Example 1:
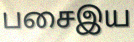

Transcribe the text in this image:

பசைஇய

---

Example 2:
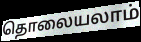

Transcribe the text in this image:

தொலையலாம்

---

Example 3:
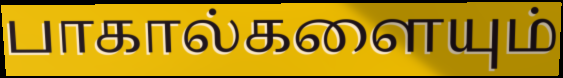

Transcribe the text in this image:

பாகால்களையும்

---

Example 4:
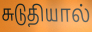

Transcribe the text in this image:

சுடுதியால்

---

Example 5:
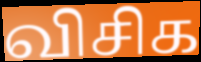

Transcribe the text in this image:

விசிக